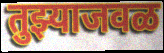
तुझ्याजवळ